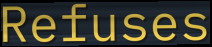
Refuses